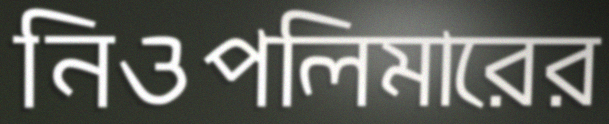
নিওপলিমারের